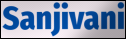
Sanjivani